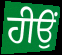
ਹੀਉਂ